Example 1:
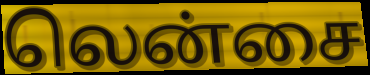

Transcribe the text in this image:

லென்சை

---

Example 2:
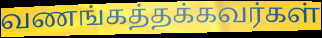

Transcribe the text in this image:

வணங்கத்தக்கவர்கள்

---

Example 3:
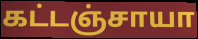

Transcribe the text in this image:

கட்டஞ்சாயா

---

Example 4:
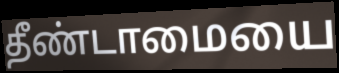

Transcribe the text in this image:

தீண்டாமையை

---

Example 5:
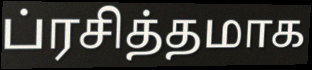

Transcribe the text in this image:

ப்ரசித்தமாக